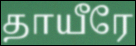
தாயீரே